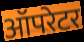
ऑपरेटर